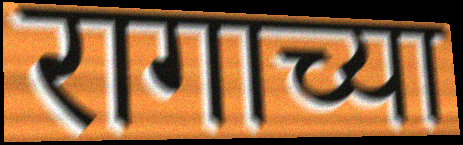
रागाच्या